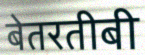
बेतरतीबी